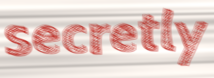
secretly